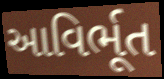
આવિર્ભૂત